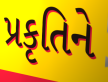
પ્રકૃતિને